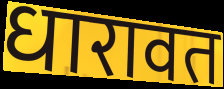
धारावत